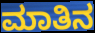
ಮಾತಿನ